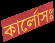
কার্লোসঃ